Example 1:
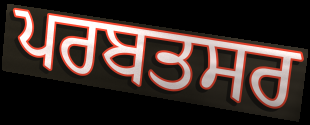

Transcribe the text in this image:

ਪਰਬਤਸਰ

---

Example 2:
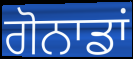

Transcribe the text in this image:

ਗੋਨਾਡਾਂ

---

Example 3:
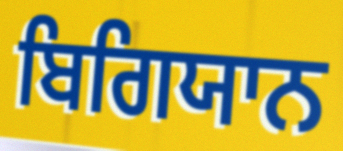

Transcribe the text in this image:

ਬਿਗਿਯਾਨ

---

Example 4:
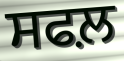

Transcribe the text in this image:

ਸਫਲ਼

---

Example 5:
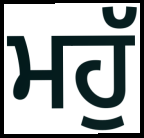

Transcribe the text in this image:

ਮਹੁੱ